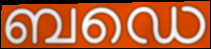
ബഡെ